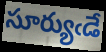
సూర్యుఁడే